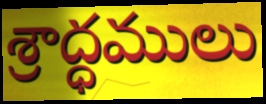
శ్రాద్ధములు